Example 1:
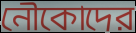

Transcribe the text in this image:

নৌকোদের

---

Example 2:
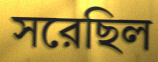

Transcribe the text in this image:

সরেছিল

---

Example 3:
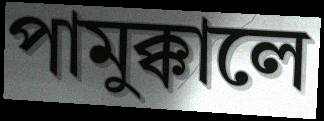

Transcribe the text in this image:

পামুক্কালে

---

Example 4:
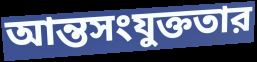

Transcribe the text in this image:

আন্তসংযুক্ততার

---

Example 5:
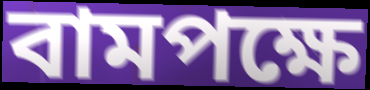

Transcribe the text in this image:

বামপক্ষে